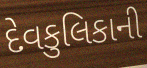
દેવકુલિકાની